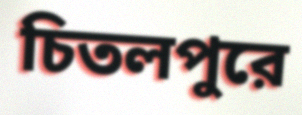
চিতলপুরে